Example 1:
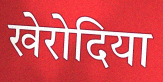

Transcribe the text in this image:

खेरोदिया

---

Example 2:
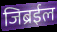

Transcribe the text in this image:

जिब्रईल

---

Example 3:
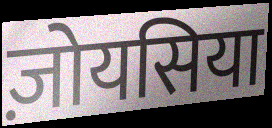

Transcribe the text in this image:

ज़ोयसिया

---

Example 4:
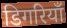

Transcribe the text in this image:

डिगरियाँ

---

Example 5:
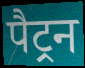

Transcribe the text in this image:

पैट्रन